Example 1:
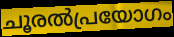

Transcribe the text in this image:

ചൂരൽപ്രയോഗം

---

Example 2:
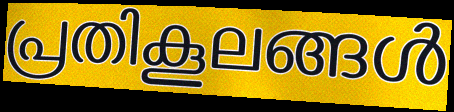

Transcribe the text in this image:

പ്രതികൂലങ്ങൾ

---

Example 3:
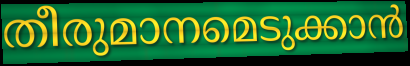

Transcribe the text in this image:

തീരുമാനമെടുക്കാൻ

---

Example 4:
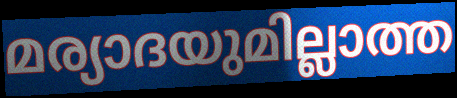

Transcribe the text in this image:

മര്യാദയുമില്ലാത്ത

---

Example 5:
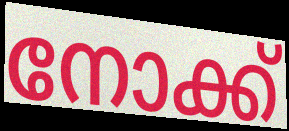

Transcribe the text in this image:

നോക്ക്